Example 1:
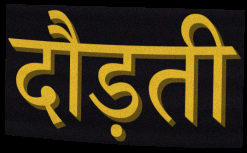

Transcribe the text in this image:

दौड़ती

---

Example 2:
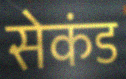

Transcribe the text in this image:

सेकंड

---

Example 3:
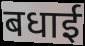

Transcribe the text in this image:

बधाई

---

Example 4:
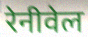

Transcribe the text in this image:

रेनीवेल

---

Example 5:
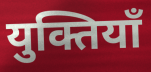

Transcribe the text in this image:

युक्तियाँ